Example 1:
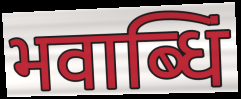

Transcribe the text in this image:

भवाब्धिं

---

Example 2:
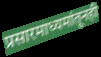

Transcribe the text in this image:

प्रसारमाध्यमांतूनही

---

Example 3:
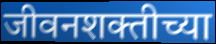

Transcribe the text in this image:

जीवनशक्तीच्या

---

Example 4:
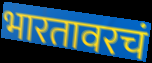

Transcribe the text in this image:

भारतावरचं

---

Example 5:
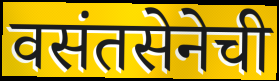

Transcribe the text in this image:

वसंतसेनेची